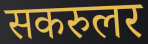
सकरुलर